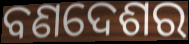
ବଣଦେଶର